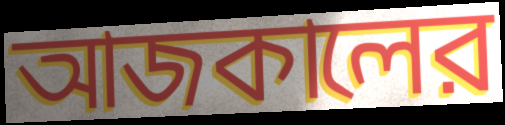
আজকালের